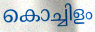
കൊച്ചിളം